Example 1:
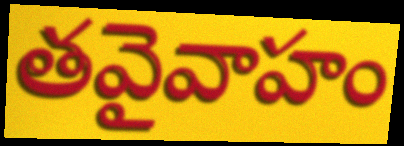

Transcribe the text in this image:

తవైవాహం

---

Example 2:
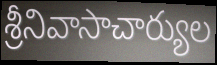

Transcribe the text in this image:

శ్రీనివాసాచార్యుల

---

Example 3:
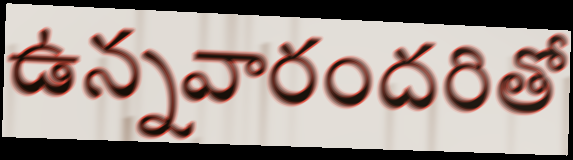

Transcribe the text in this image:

ఉన్నవారందరితో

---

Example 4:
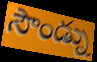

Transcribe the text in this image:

సౌండ్ను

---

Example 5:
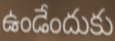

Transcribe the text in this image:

ఉండేందుకు